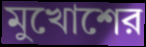
মুখোশের